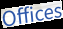
Offices